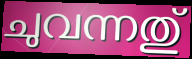
ചുവന്നതു്